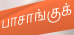
பாசாங்குக்